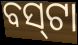
ବସ୍‍ଟା